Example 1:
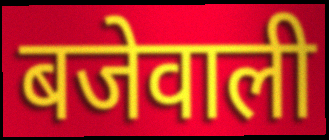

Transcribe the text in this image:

बजेवाली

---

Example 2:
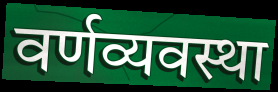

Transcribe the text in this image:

वर्णव्यवस्था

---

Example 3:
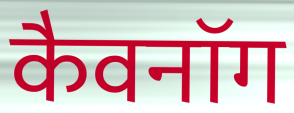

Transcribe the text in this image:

कैवनॉग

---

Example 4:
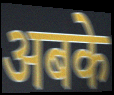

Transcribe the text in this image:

अबके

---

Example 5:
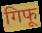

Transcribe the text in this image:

गिफू